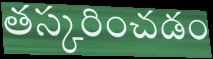
తస్కరించడం